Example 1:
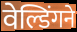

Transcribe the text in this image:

वेल्डिंगने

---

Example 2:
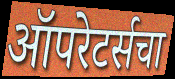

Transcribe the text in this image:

ऑपरेटर्सचा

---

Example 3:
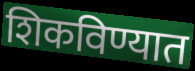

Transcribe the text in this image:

शिकविण्यात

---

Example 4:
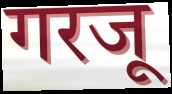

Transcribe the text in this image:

गरजू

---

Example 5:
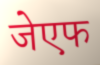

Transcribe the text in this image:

जेएफ